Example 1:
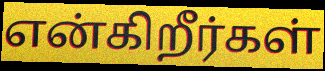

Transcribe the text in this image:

என்கிறீர்கள்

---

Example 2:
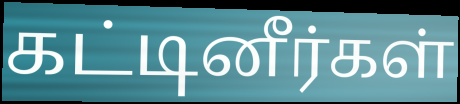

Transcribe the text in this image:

கட்டினீர்கள்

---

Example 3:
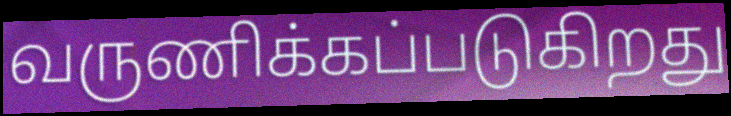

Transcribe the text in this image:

வருணிக்கப்படுகிறது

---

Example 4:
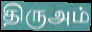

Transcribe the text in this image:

திருஅம்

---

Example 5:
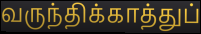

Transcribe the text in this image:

வருந்திக்காத்துப்